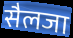
सैलजा